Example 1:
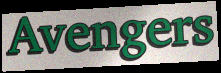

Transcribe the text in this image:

Avengers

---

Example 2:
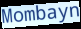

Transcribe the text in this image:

Mombayn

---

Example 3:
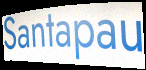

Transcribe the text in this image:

Santapau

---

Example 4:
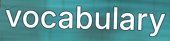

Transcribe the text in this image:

vocabulary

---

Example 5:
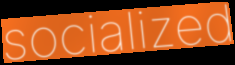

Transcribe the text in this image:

socialized